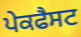
ਪੇਕਫੈਸਟ